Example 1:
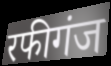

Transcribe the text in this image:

रफीगंज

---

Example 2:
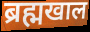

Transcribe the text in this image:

ब्रह्मखाल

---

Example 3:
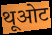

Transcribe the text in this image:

थूओट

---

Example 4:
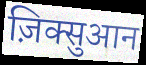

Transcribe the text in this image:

ज़िक्सुआन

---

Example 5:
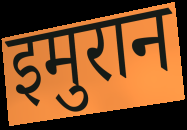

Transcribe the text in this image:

इमुरान